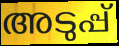
അടുപ്പ്